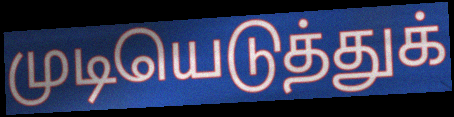
முடியெடுத்துக்